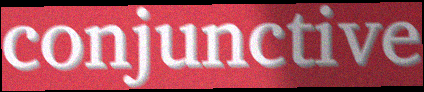
conjunctive